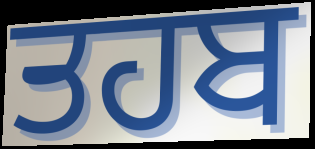
ਤਹਬ